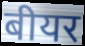
बीयर